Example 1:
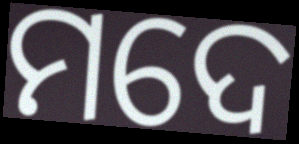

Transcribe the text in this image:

ମଦେ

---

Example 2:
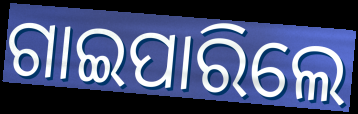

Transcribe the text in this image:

ଗାଇପାରିଲେ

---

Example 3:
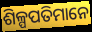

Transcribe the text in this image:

ଶିଳ୍ପପତିମାନେ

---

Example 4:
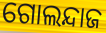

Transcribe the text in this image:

ଗୋଲନ୍ଦାଜ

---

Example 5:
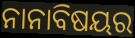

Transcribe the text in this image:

ନାନାବିଷୟର